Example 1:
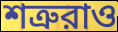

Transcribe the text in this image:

শত্রুরাও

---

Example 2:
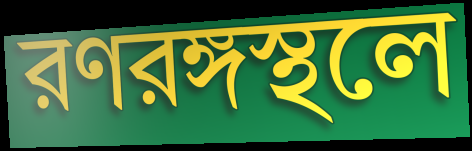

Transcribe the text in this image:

রণরঙ্গস্থলে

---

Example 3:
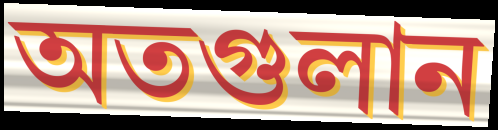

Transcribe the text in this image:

অতগুলান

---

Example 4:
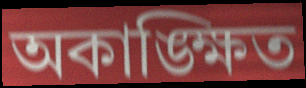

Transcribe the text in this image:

অকাঙ্ক্ষিত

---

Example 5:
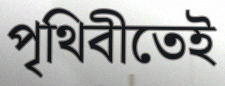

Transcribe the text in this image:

পৃথিবীতেই